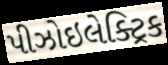
પીઝોઇલેક્ટ્રિક